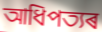
আধিপত্যৰ